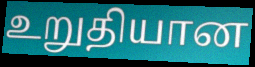
உறுதியான